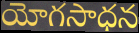
యోగసాధన